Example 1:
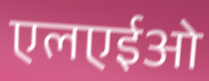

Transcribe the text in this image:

एलएईओ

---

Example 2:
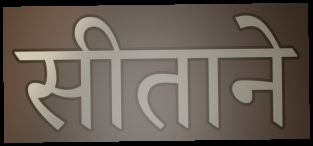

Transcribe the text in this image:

सीताने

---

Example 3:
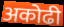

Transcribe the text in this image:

अकोढी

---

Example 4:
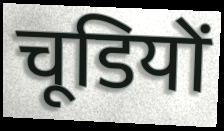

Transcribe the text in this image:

चूडियों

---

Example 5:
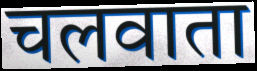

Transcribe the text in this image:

चलवाता